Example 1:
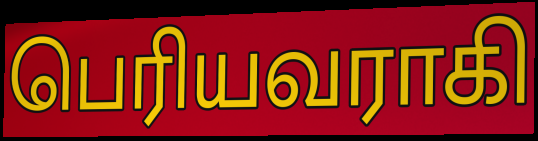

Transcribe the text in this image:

பெரியவராகி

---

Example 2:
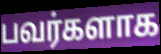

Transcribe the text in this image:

பவர்களாக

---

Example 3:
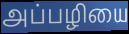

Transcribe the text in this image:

அப்பழியை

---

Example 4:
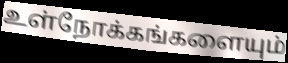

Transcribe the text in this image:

உள்நோக்கங்களையும்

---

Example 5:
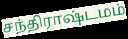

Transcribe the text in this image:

சந்திராஷ்டமம்